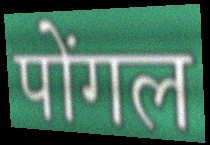
पोंगल